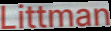
Littman